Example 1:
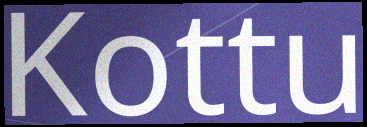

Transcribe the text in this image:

Kottu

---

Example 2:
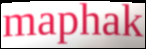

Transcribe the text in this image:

maphak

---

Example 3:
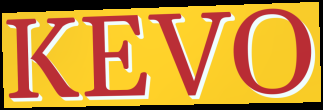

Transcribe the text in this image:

KEVO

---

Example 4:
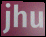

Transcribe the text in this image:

jhu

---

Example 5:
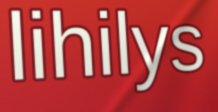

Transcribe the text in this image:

lihilys